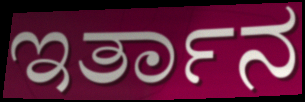
ಇರ್ತಾನ